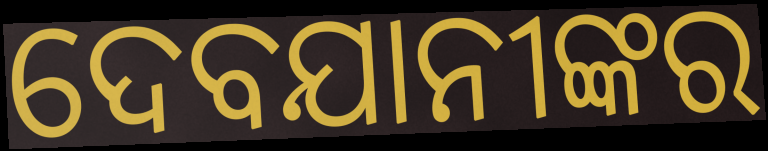
ଦେବଯାନୀଙ୍କର